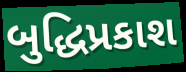
બુદ્ધિપ્રકાશ